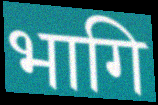
भागि